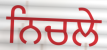
ਨਿਚਲੇ